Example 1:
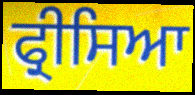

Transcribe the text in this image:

ਫ੍ਰੀਸਿਆ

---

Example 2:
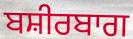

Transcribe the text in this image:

ਬਸ਼ੀਰਬਾਗ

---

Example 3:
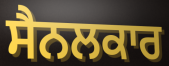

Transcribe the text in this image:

ਸੈਨਲਕਾਰ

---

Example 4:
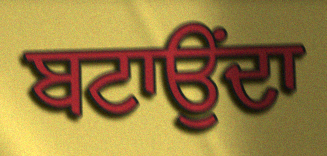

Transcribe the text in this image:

ਬਟਾਉਂਦਾ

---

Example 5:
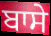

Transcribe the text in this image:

ਬਾਸੇ